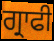
ਗ੍ਰਾਫੀ